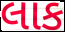
લાક